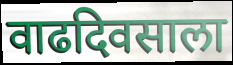
वाढदिवसाला